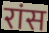
रांस